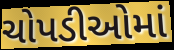
ચોપડીઓમાં